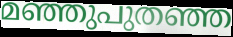
മഞ്ഞുപുതഞ്ഞ